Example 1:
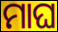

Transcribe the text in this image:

ମାଘ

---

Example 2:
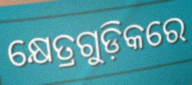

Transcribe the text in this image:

କ୍ଷେତ୍ରଗୁଡ଼ିକରେ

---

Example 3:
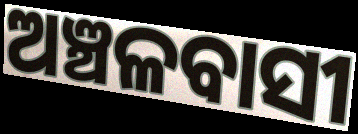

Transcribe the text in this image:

ଅଞ୍ଚଳବାସୀ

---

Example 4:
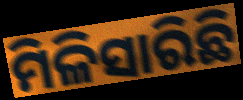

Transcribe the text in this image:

ମିଳିସାରିଛି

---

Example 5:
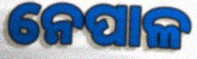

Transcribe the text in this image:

ନେପାଳ